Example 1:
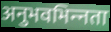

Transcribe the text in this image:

अनुभवभिन्नता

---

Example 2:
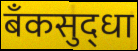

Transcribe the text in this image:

बँकसुद्धा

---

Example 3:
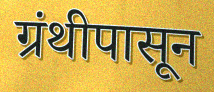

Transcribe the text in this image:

ग्रंथीपासून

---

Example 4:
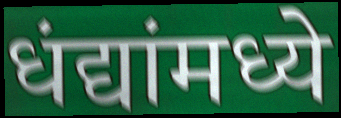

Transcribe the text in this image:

धंद्यांमध्ये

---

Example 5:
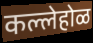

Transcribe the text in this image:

कल्लेहोळ